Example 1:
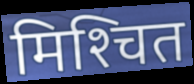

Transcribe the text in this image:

मिश्चित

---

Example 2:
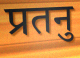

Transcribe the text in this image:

प्रतनु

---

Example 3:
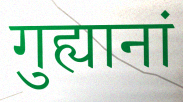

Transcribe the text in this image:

गुह्यानां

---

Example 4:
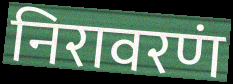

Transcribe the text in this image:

निरावरणं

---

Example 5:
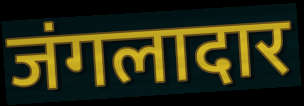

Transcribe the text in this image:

जंगलादार